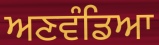
ਅਣਵੰਡਿਆ